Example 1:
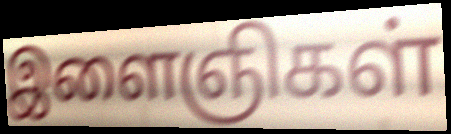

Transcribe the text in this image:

இளைஞிகள்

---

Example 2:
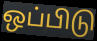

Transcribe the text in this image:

ஒப்பிடு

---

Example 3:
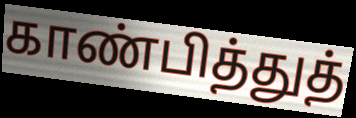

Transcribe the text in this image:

காண்பித்துத்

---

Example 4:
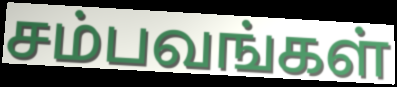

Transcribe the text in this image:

சம்பவங்கள்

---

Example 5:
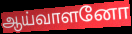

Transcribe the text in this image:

ஆய்வாளனோ